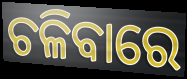
ଚଳିବାରେ